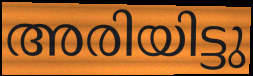
അരിയിട്ടു